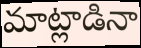
మాట్లాడినా